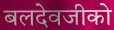
बलदेवजीको